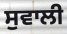
ਸੁਵਾਲੀ